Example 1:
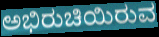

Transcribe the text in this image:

ಅಭಿರುಚಿಯಿರುವ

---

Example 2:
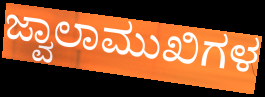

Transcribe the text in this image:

ಜ್ವಾಲಾಮುಖಿಗಳ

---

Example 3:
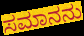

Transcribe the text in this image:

ಸಮಾನನು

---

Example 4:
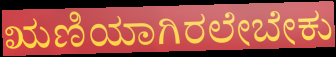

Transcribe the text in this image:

ಋಣಿಯಾಗಿರಲೇಬೇಕು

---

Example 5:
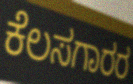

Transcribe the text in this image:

ಕೆಲಸಗಾರರ